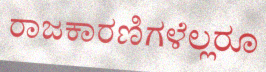
ರಾಜಕಾರಣಿಗಳೆಲ್ಲರೂ